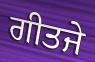
ਗੀਤਜੇ